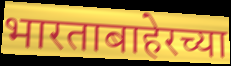
भारताबाहेरच्या